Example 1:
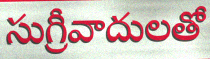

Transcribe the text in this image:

సుగ్రీవాదులతో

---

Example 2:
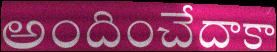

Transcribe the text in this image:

అందించేదాకా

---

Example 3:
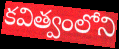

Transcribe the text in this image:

కవిత్వంలోని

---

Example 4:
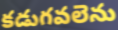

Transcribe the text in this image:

కడుగవలెను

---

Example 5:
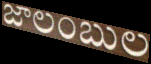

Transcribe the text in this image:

జాలంబుల